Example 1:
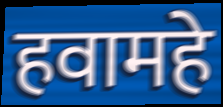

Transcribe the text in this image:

हवामहे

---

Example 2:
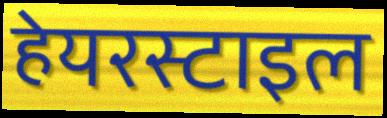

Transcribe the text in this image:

हेयरस्टाइल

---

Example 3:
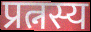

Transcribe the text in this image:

प्रत्नस्य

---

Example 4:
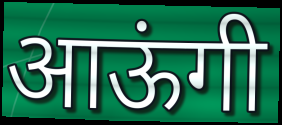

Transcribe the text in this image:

आऊंगी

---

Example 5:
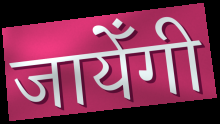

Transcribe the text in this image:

जायेँगी